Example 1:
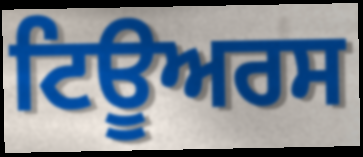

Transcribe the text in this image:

ਟਿਊਅਰਸ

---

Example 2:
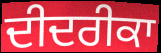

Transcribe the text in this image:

ਦੀਦਰੀਕਾ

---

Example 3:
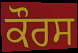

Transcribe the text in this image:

ਕੌਰਸ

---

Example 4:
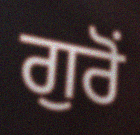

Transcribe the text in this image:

ਗੁਰੋਂ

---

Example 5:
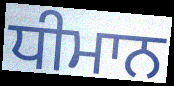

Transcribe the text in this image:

ਧੀਮਾਨ